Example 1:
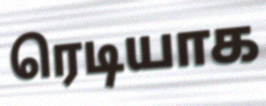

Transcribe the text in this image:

ரெடியாக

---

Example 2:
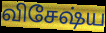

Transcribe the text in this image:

விசேஷ்ய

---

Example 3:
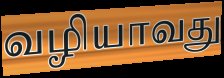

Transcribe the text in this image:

வழியாவது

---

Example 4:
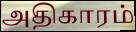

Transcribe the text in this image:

அதிகாரம்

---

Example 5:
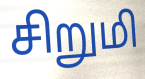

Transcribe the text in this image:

சிறுமி